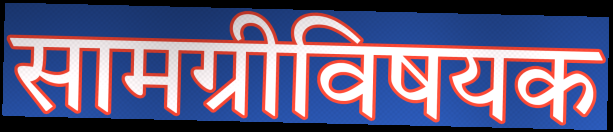
सामग्रीविषयक